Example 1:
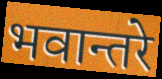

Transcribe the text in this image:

भवान्तरे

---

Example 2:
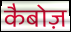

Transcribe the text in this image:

कैबोज़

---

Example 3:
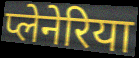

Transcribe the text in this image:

प्लेनेरिया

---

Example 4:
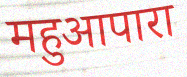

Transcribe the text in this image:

महुआपारा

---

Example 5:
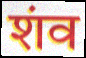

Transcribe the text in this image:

शंव